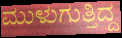
ಮುಳುಗುತ್ತಿದ್ದ